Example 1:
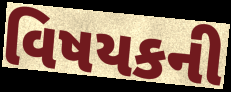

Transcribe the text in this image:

વિષયકની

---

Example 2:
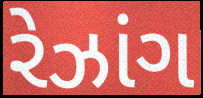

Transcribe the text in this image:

રેઝાંગ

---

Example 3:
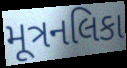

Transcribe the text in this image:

મૂત્રનલિકા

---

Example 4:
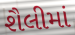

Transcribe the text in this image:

શૈલીમાં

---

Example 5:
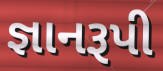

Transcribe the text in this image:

જ્ઞાનરૂપી